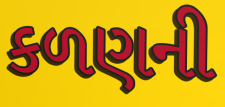
કળણની